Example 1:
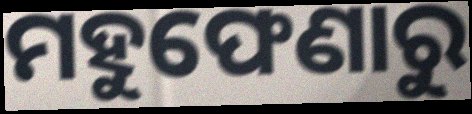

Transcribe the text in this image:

ମହୁଫେଣାରୁ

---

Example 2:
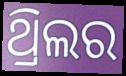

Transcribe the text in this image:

ଥ୍ରିଲର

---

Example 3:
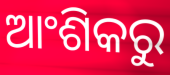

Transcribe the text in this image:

ଆଂଶିକରୁ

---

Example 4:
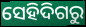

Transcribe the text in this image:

ସେହିଦିଗରୁ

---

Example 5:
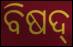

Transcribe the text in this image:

ବିଷଦ୍